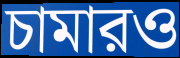
চামারও